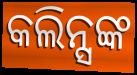
କଲିନ୍ସଙ୍କ